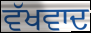
ਵੱਖਵਾਦ